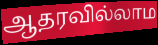
ஆதரவில்லாம